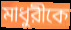
মাধুরীকে